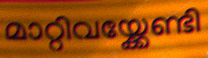
മാറ്റിവയ്ക്കേണ്ടി